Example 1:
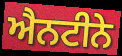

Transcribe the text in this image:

ਐਨਟੀਨੇ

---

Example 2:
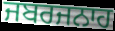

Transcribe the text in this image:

ਜਬਰਜਨਾਹ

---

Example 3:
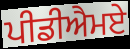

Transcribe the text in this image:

ਪੀਡੀਐਮਏ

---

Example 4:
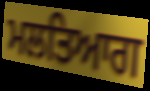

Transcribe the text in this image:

ਮਲਤਿਆਗ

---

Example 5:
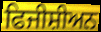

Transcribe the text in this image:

ਫਿਜੀਸ਼ੀਅਨ